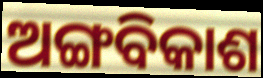
ଅଙ୍ଗବିକାଶ